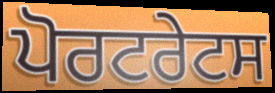
ਪੋਰਟਰੇਟਸ